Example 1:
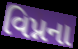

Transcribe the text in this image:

વિપ્નના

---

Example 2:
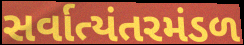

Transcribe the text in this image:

સર્વાત્યંતરમંડળ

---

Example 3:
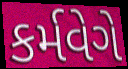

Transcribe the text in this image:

કર્મવેગે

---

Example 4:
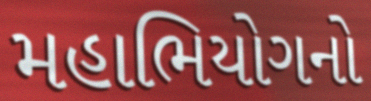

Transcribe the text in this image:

મહાભિયોગનો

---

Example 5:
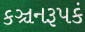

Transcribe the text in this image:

કઞ્ચનરૂપકં